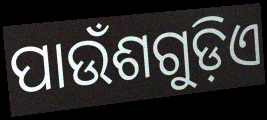
ପାଉଁଶଗୁଡ଼ିଏ